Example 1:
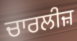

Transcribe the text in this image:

ਚਾਰਲੀਜ਼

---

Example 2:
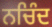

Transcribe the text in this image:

ਨਚਿੰਦ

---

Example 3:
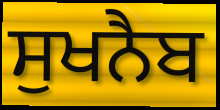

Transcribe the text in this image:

ਸੁਖਨੈਬ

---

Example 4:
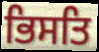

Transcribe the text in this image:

ਭਿਸਤਿ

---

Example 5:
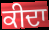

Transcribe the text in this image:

ਕੀਦਾ